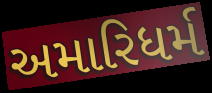
અમારિધર્મ